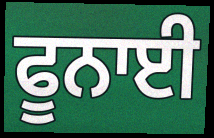
ਫੂਨਾਈ